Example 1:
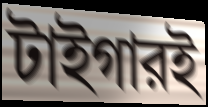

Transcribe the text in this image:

টাইগারই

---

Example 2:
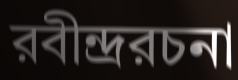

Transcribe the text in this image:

রবীন্দ্ররচনা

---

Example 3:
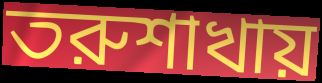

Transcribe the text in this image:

তরুশাখায়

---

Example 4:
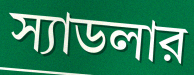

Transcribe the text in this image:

স্যাডলার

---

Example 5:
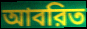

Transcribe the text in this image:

আবরিত